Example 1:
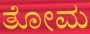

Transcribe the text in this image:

ತೋಮ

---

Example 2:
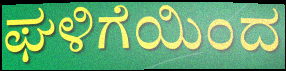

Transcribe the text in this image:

ಘಳಿಗೆಯಿಂದ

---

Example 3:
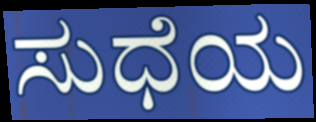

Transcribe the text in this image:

ಸುಧೆಯ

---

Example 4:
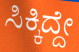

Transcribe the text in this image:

ಸಿಕ್ಕಿದ್ದೇ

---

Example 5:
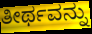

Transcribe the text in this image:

ತೀರ್ಥವನ್ನು